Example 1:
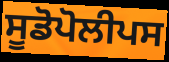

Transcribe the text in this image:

ਸੂਡੋਪੋਲੀਪਸ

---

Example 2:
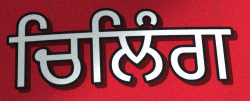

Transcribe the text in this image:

ਚਿਲਿੰਗ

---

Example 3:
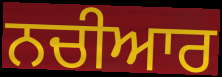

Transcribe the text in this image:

ਨਚੀਆਰ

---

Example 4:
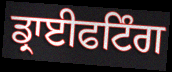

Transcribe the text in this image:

ਡ੍ਰਾਈਫਟਿੰਗ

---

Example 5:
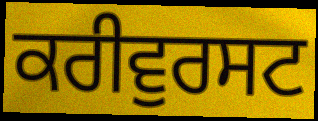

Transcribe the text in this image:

ਕਰੀਵੁਰਸਟ